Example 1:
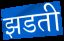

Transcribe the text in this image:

झडती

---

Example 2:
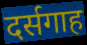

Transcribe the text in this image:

दर्सगाह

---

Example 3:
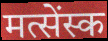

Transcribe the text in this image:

मत्सेंस्क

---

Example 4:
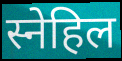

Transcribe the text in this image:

स्नेहिल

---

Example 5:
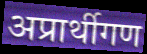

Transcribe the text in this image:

अप्रार्थीगण